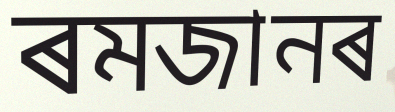
ৰমজানৰ